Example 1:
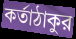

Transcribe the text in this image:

কর্তাঠাকুর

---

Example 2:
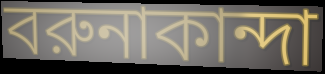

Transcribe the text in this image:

বরুনাকান্দা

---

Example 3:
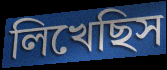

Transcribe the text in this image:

লিখেছিস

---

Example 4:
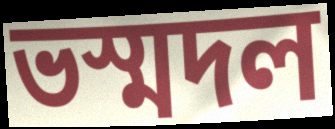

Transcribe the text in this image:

ভস্মদল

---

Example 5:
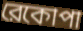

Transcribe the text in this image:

রেকোপা